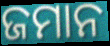
ଜମାନ